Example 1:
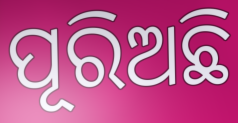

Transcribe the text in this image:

ପୂରିଅଛି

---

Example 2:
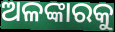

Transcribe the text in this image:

ଅଳଙ୍କାରକୁ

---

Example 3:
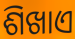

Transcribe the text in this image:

ଶିଖାଏ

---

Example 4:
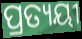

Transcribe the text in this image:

ପ୍ରତ୍ୟୟୀ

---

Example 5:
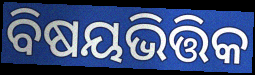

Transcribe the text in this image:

ବିଷୟଭିତ୍ତିକ